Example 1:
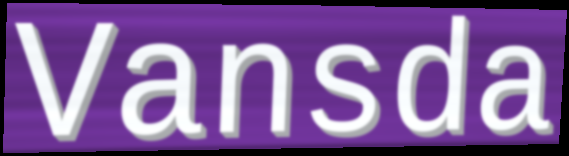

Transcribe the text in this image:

Vansda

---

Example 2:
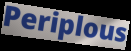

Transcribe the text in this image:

Periplous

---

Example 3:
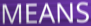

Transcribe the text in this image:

MEANS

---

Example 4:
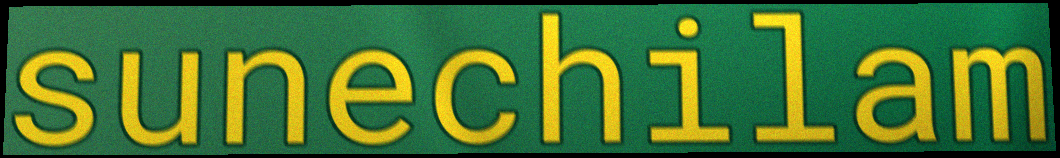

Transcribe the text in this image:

sunechilam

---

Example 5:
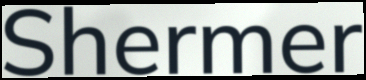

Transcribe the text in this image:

Shermer